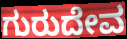
ಗುರುದೇವ